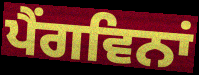
ਪੈਂਗਵਿਨਾਂ